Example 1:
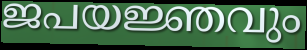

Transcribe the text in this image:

ജപയജ്ഞവും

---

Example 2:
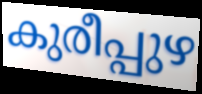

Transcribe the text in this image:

കുരീപ്പുഴ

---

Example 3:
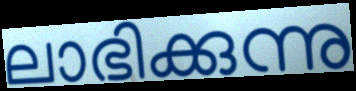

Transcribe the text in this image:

ലാഭിക്കുന്നു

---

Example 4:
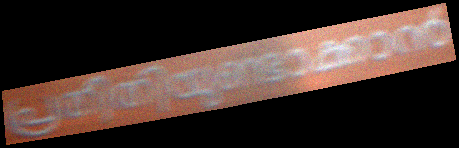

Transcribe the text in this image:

പ്രതീതിയുണ്ടാക്കാൻ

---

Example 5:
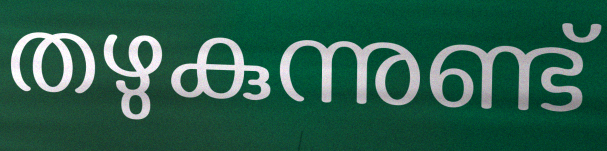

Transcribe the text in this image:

തഴുകുന്നുണ്ട്